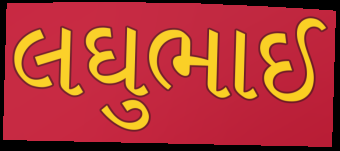
લઘુભાઈ